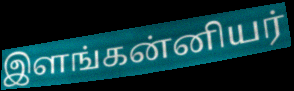
இளங்கன்னியர்